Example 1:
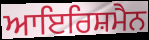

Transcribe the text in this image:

ਆਇਰਿਸ਼ਮੈਨ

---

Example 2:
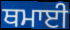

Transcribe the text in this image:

ਥਮਾਈ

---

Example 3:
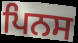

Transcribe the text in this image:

ਪਿਨਸ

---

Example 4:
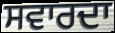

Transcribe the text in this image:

ਸਵਾਰਦਾ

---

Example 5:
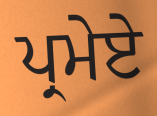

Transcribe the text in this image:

ਪ੍ਰਮੇਏ